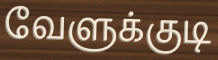
வேளுக்குடி